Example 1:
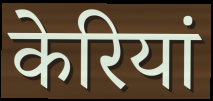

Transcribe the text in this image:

केरियां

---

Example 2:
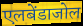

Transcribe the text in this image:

एलबेंडाजोल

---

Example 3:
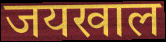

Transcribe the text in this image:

जयखाल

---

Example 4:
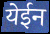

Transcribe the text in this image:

येईन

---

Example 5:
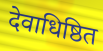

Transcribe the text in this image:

देवाधिष्ठित